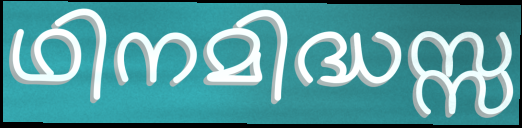
ഥിനമിദ്ധസ്സ